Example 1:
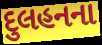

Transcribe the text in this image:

દુલહનના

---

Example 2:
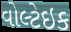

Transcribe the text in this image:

વોલ્ટેઇક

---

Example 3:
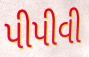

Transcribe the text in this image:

પીપીવી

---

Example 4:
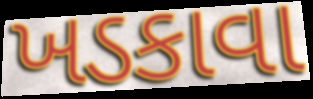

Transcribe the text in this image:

ખડકાવા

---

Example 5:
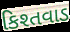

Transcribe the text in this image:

કિશ્તવાડ